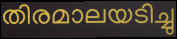
തിരമാലയടിച്ചു